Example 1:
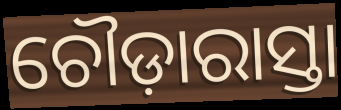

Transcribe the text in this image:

ଚୌଡ଼ାରାସ୍ତା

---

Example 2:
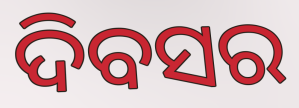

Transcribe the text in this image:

ଦିବସର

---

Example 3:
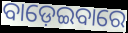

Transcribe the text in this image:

ବାଡ଼େଇବାରେ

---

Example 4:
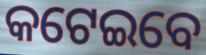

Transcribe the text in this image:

କଟେଇବେ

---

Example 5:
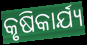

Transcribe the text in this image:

କୃଷିକାର୍ଯ୍ୟ